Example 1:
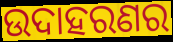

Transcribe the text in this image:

ଉଦାହରଣର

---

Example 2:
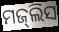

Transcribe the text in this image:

ମଜ୍‌ଲିସ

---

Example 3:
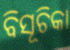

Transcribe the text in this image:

ବିସୂଚିକା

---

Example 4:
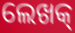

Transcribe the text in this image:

ଲେଖକ୍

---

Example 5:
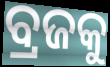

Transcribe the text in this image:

ବ୍ରଜକୁ